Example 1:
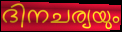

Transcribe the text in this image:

ദിനചര്യയും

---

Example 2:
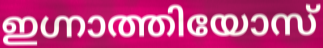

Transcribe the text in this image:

ഇഗ്നാത്തിയോസ്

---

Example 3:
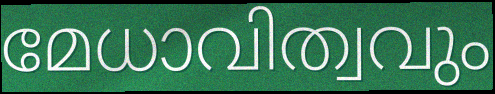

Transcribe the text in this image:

മേധാവിത്വവും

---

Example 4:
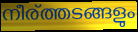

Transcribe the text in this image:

നീര്ത്തടങ്ങളും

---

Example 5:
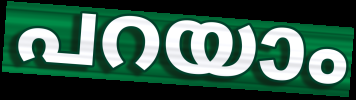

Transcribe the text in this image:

പറയാം